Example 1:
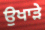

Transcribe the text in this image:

ਉਖਾੜੇ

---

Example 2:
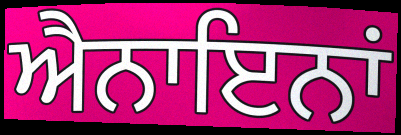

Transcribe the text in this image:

ਐਨਾਇਨਾਂ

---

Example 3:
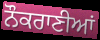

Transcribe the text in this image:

ਨੌਕਰਾਣੀਆਂ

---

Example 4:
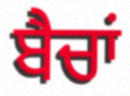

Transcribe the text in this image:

ਬੈਚਾਂ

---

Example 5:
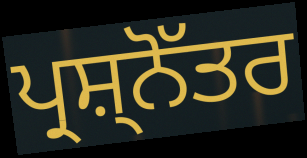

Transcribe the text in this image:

ਪ੍ਰਸ਼੍ਨੋੱਤਰ